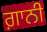
ਗ਼ਾਨੀ